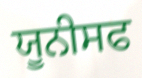
ਯੂਨੀਸਫ